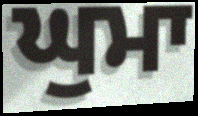
ਘੁਮਾ